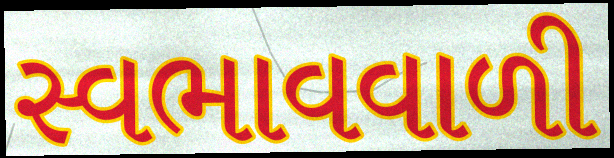
સ્વભાવવાળી